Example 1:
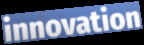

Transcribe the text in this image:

innovation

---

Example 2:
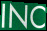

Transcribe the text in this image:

INC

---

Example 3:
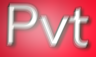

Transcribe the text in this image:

Pvt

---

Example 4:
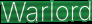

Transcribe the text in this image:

Warlord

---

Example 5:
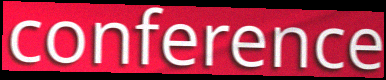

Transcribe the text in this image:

conference